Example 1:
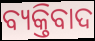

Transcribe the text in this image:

ବ୍ୟକ୍ତିବାଦ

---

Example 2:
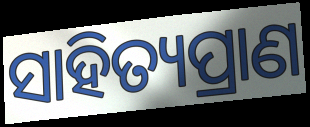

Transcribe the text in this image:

ସାହିତ୍ୟପ୍ରାଣ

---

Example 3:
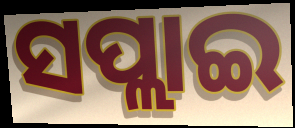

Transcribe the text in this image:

ସପ୍ଲାଇ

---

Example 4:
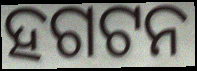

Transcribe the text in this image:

ହଗଟନ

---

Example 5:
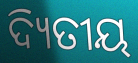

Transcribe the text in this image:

ଦ୍ଯିତୀୟ